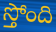
స్తోంది